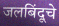
जलबिंदूचे